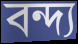
বন্দ্য